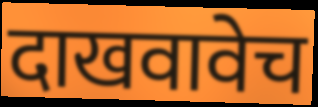
दाखवावेच